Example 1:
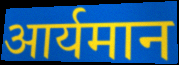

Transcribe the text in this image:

आर्यमान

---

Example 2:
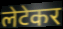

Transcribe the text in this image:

लेटेकर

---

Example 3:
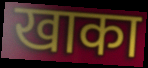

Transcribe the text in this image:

खाका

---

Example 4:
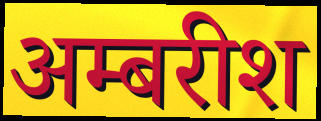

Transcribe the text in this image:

अम्बरीश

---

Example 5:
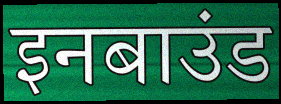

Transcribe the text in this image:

इनबाउंड